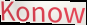
Konow